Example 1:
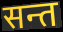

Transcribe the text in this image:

सन्त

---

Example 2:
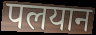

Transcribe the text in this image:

पलयान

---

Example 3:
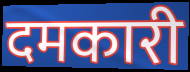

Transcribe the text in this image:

दमकारी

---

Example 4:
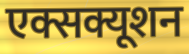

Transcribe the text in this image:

एक्सक्यूशन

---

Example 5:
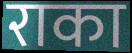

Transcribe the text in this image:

राका